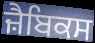
ਜ਼ੈਬਿਕਸ